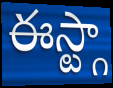
ఈస్ట్గా